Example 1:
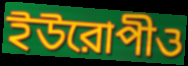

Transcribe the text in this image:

ইউরোপীও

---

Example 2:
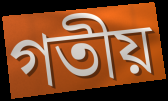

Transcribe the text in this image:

গতীয়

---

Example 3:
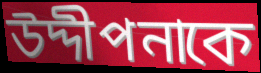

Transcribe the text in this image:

উদ্দীপনাকে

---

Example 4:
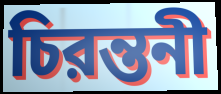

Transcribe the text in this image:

চিরন্তনী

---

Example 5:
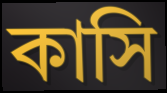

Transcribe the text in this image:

কাসি